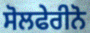
ਸੋਲਫੇਰੀਨੋ